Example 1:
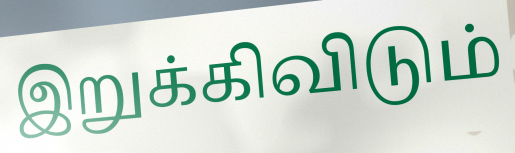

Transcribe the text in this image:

இறுக்கிவிடும்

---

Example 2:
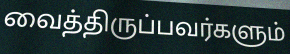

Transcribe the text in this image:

வைத்திருப்பவர்களும்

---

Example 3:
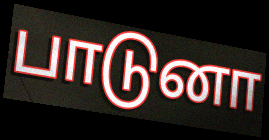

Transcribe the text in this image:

பாடுனா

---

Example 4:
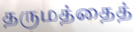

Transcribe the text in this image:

தருமத்தைத்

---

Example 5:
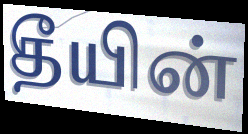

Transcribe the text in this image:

தீயின்